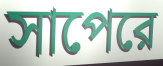
সাপেরে